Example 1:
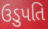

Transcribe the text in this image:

ઉડુપતિ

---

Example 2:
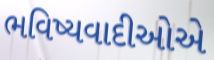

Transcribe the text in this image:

ભવિષ્યવાદીઓએ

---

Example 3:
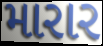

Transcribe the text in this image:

મારાર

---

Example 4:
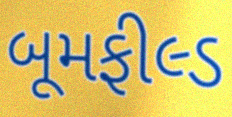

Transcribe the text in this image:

બૂમફીલ્ડ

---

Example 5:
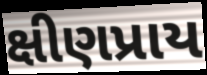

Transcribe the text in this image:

ક્ષીણપ્રાય